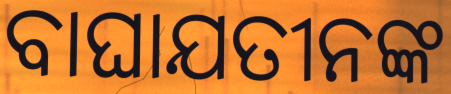
ବାଘାଯତୀନଙ୍କ